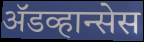
ॲडव्हान्सेस